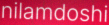
nilamdoshi